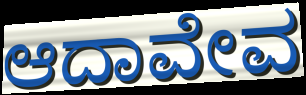
ಆದಾವೇವ